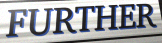
FURTHER